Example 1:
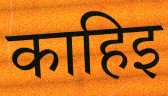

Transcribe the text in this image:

काहिइ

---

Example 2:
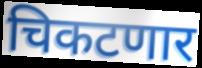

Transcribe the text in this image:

चिकटणार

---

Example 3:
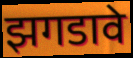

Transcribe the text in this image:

झगडावे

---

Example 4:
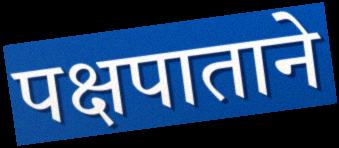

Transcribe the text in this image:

पक्षपाताने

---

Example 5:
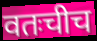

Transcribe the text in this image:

वतःचीच